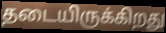
தடையிருக்கிறது